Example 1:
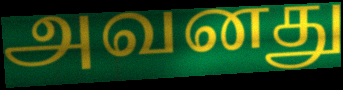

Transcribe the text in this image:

அவனது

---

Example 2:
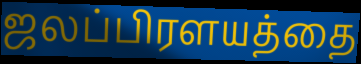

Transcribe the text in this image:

ஜலப்பிரளயத்தை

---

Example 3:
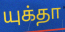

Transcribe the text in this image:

யுக்தா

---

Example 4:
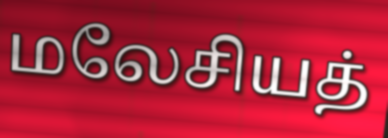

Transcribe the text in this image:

மலேசியத்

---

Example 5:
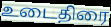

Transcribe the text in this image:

உடைதிரை